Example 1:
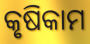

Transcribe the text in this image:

କୃଷିକାମ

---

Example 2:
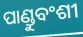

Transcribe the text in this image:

ପାଣ୍ଡୁବଂଶୀ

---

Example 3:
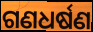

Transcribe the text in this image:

ଗଣଧର୍ଷଣ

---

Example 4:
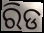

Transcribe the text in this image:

ରିଡ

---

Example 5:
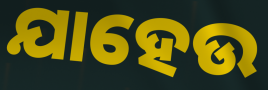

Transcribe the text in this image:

ଯାହେଉ